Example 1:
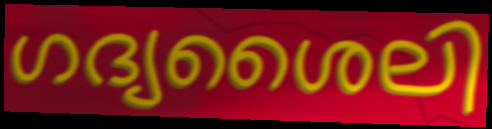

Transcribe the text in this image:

ഗദ്യശൈലി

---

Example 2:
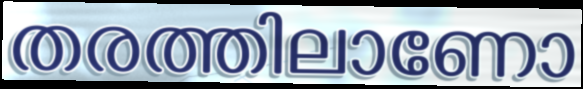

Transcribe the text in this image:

തരത്തിലാണോ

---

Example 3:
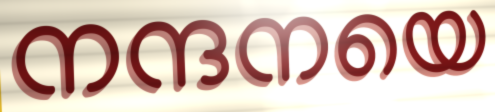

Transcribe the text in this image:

നന്ദനയെ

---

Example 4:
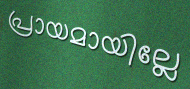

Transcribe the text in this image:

പ്രായമായില്ലേ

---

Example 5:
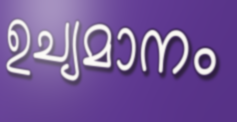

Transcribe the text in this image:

ഉച്യമാനം